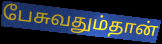
பேசுவதும்தான்